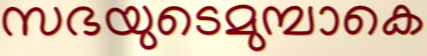
സഭയുടെമുമ്പാകെ